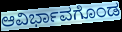
ಆವಿರ್ಭಾವಗೊಂಡ